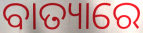
ବାତ୍ୟାରେ